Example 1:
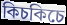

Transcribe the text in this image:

কিচকিচে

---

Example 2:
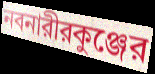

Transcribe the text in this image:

নবনারীরকুঞ্জের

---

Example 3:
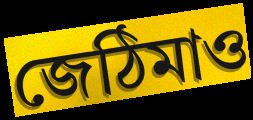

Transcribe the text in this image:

জেঠিমাও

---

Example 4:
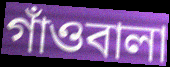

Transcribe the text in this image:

গাঁওবালা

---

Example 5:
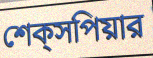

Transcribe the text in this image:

শেক্‌সপিয়ার